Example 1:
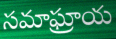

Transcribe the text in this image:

సమాఘ్రాయ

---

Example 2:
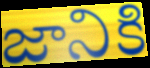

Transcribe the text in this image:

జానికి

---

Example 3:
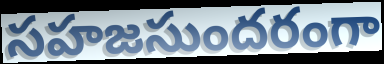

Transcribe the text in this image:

సహజసుందరంగా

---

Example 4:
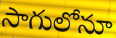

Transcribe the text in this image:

సాగులోనూ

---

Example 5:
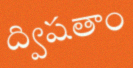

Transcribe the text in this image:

ద్విషతాం